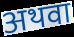
अथवा